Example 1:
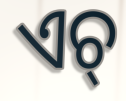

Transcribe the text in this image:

ଏଚ୍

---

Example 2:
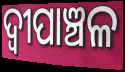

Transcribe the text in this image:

ଦ୍ୱୀପାଞ୍ଚଳ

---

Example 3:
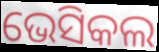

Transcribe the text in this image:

ଭେସିକଲ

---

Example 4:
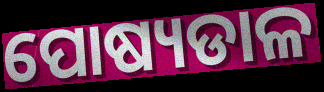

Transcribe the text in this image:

ପୋଷ୍ୟଡାଳ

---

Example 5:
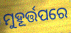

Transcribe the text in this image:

ମୁହୂର୍ତ୍ତପରେ